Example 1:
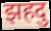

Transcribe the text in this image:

झहदु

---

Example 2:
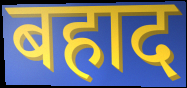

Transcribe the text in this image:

बहाद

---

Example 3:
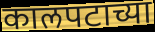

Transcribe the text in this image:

कालपटाच्या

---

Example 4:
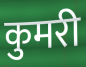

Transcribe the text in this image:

कुमरी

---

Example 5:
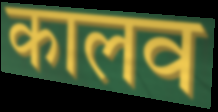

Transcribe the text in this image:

कालव